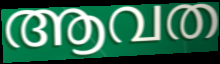
ആവത